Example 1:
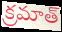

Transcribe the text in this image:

క్రమాత్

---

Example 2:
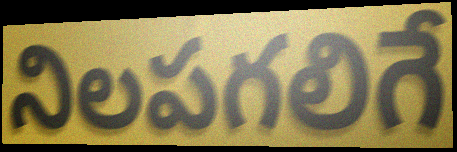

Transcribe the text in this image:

నిలపగలిగే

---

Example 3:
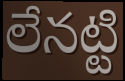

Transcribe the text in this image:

లేనట్టి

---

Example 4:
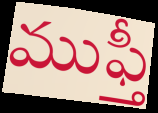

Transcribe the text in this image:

ముఫ్తీ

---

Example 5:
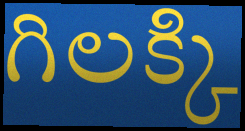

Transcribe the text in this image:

గిలక్కి